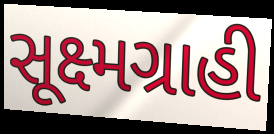
સૂક્ષ્મગ્રાહી